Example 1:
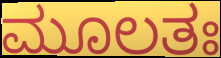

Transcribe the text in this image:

ಮೂಲತಃ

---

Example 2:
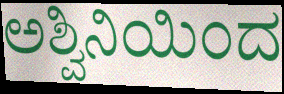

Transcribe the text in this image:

ಅಶ್ವಿನಿಯಿಂದ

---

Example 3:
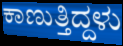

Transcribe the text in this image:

ಕಾಣುತ್ತಿದ್ದಳು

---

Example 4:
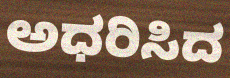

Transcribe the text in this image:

ಅಧರಿಸಿದ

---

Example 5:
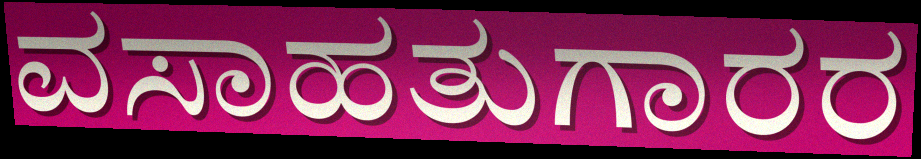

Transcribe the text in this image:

ವಸಾಹತುಗಾರರ